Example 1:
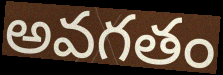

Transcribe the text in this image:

అవగతం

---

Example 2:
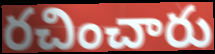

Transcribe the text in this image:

రచించారు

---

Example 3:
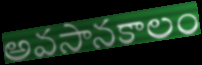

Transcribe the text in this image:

అవసానకాలం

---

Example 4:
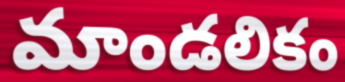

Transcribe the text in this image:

మాండలికం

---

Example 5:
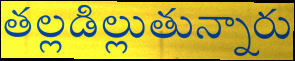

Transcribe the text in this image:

తల్లడిల్లుతున్నారు